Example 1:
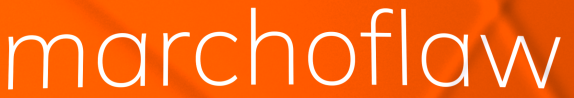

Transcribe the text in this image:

marchoflaw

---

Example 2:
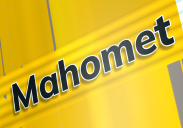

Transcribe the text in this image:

Mahomet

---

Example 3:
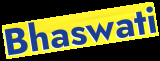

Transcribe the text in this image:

Bhaswati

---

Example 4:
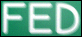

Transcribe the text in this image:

FED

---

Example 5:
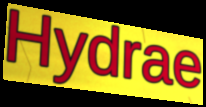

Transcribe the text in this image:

Hydrae